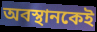
অবস্থানকেই